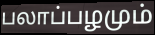
பலாப்பழமும்